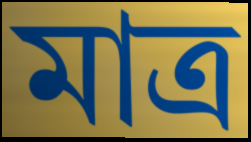
মাত্ৰ